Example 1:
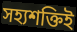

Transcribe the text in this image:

সহ্যশক্তিই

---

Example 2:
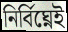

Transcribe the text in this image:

নির্বিঘ্নেই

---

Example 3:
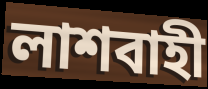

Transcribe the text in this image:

লাশবাহী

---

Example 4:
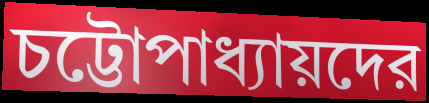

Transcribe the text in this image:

চট্টোপাধ্যায়দের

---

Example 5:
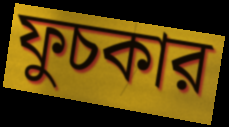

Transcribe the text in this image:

ফুচকার